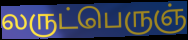
லருட்பெருஞ்